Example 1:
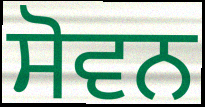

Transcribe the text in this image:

ਸੋਵਨ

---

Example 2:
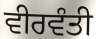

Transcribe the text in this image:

ਵੀਰਵੰਤੀ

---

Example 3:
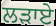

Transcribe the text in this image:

ਲੜਾਏ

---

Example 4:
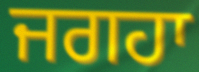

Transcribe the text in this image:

ਜਗਹਾ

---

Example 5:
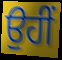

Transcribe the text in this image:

ਉਹੀਂ